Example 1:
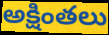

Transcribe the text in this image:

అక్షింతలు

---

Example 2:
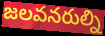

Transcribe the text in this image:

జలవనరుల్ని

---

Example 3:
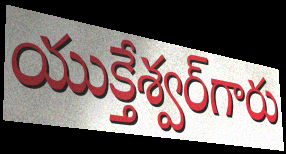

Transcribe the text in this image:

యుక్తేశ్వర్‌గారు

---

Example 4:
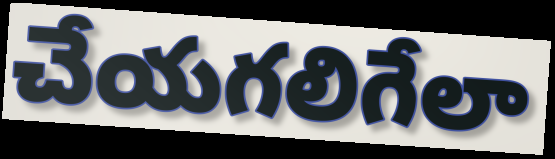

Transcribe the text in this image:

చేయగలిగేలా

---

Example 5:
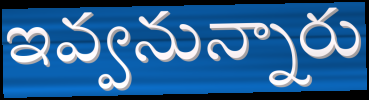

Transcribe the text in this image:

ఇవ్వనున్నారు